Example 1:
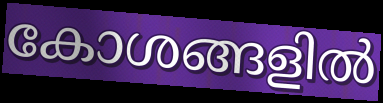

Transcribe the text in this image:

കോശങ്ങളിൽ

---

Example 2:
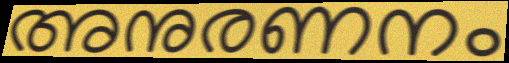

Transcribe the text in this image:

അനുരണനം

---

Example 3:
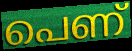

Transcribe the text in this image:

പെണ്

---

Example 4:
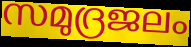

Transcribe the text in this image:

സമുദ്രജലം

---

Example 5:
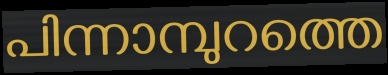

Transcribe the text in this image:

പിന്നാമ്പുറത്തെ